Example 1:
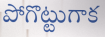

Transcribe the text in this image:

పోగొట్టుగాక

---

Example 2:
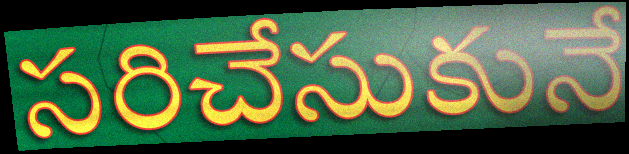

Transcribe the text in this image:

సరిచేసుకునే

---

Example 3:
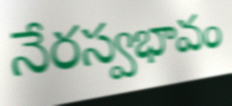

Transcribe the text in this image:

నేరస్వభావం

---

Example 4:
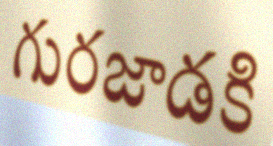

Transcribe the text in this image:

గురజాడకి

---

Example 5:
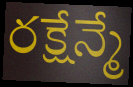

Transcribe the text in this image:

రక్షేన్మే